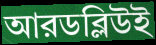
আরডব্লিউই